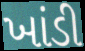
ખાંડી